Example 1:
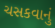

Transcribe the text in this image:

ચસકવાનું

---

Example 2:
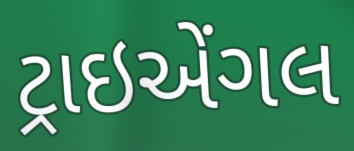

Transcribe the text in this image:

ટ્રાઇએંગલ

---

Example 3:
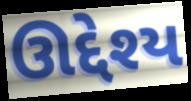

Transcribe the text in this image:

ઊદ્દેશ્ય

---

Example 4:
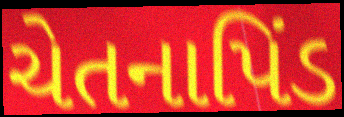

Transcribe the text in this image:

ચેતનાપિંડ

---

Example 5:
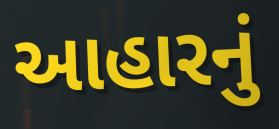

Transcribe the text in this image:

આહારનું